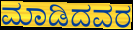
ಮಾಡಿದವರ